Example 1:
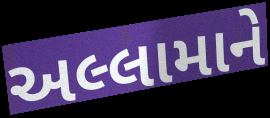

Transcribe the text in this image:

અલ્લામાને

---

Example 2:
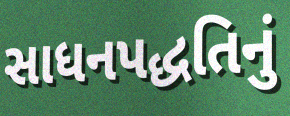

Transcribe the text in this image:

સાધનપદ્ધતિનું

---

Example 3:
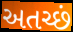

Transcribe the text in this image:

અતચ્છં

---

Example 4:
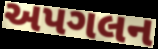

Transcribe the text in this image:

અપગલન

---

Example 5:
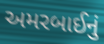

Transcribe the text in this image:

અમરબાઈનું